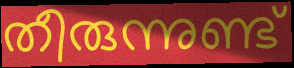
തീരുന്നുണ്ട്